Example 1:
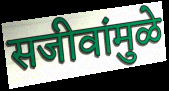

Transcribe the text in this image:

सजीवांमुळे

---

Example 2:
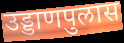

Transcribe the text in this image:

उड्डाणपुलास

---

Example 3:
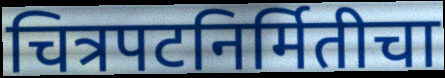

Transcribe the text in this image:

चित्रपटनिर्मितीचा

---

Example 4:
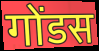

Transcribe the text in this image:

गोंडस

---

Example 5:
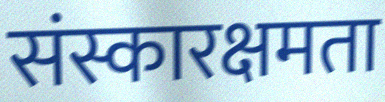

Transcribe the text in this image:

संस्कारक्षमता